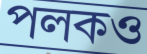
পলকও